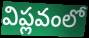
విప్లవంలో